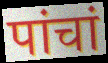
पांचां